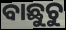
ବାଛୁଚୁ